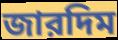
জারদিম